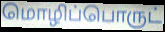
மொழிப்பொருட்